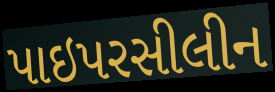
પાઇપરસીલીન